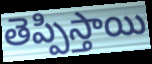
తెప్పిస్తాయి